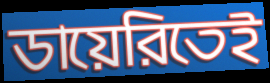
ডায়েরিতেই